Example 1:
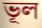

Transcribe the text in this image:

ভূল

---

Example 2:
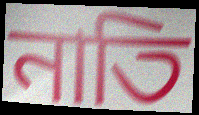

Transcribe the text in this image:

নাতি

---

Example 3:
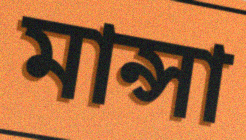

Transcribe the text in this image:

মান্সা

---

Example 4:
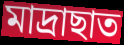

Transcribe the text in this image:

মাদ্ৰাছাত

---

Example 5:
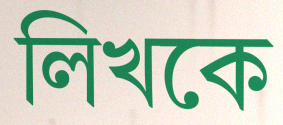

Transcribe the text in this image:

লিখকে